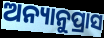
ଅନ୍ୟାନୁପ୍ରାସ